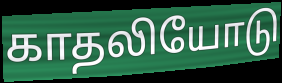
காதலியோடு